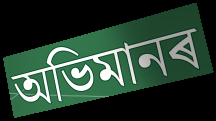
অভিমানৰ